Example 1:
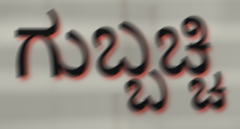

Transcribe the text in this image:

ಗುಬ್ಬಚ್ಚಿ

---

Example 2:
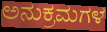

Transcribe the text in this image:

ಅನುಕ್ರಮಗಳ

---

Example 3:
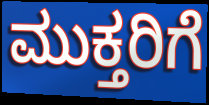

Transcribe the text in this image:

ಮುಕ್ತರಿಗೆ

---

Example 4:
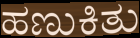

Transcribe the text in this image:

ಹಣುಕಿತು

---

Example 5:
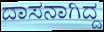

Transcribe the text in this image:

ದಾಸನಾಗಿದ್ದ